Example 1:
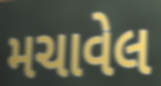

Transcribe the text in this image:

મચાવેલ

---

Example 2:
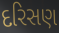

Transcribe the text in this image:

દરિસણ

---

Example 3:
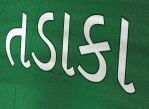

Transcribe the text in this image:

તડાકા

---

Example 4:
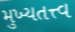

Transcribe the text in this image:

મુખ્યતત્ત્વ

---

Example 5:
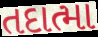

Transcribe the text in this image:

તદાત્મા